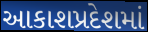
આકાશપ્રદેશમાં